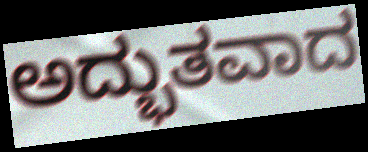
ಅದ್ಭುತವಾದ